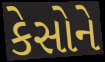
કેસોને